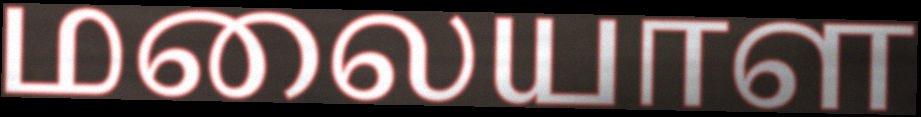
மலையாள